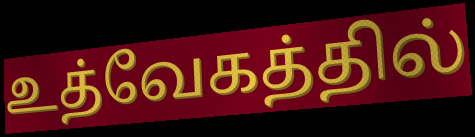
உத்வேகத்தில்